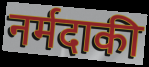
नर्मदाकी